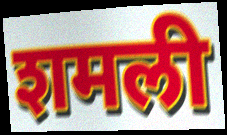
शमली